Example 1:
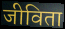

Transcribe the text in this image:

जीविता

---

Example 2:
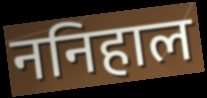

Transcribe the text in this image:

ननिहाल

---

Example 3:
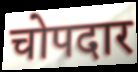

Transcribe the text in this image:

चोपदार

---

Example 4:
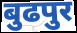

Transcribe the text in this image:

बुढपुर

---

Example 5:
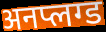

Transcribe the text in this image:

अनप्लग्ड